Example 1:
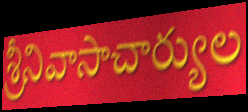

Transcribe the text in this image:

శ్రీనివాసాచార్యుల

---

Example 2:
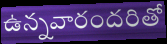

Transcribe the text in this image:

ఉన్నవారందరితో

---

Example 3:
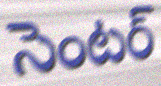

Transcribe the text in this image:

సెంటర్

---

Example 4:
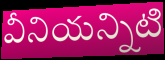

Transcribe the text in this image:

వీనియన్నిటి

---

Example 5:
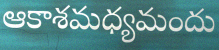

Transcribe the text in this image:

ఆకాశమధ్యమందు